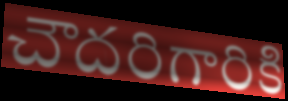
చౌదరిగారికి